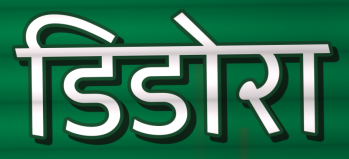
डिडोरा